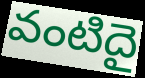
వంటిదై